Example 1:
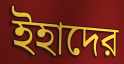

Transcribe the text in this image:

ইহাদের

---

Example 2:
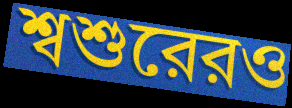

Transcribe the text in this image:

শ্বশুরেরও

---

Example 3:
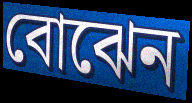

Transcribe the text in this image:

বোঝেন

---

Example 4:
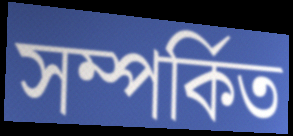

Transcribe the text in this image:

সম্পর্কিত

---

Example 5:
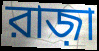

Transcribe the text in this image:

রাজ়া